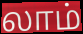
லாம்